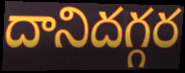
దానిదగ్గర